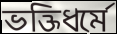
ভক্তিধর্মে